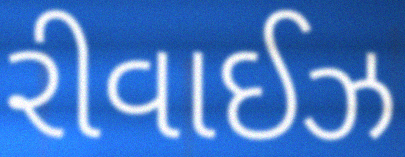
રીવાઈઝ